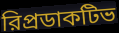
রিপ্রডাকটিভ